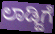
ಲಾಡ್ಜಿಗೆ